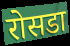
रोसडा